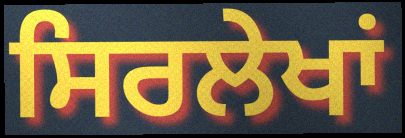
ਸਿਰਲੇਖਾਂ